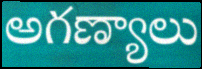
అగణ్యాలు